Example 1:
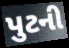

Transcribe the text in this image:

પુટની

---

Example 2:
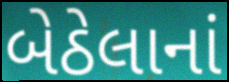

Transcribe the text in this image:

બેઠેલાનાં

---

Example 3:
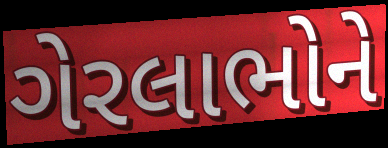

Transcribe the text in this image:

ગેરલાભોને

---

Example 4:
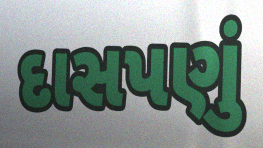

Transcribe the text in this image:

દાસપણું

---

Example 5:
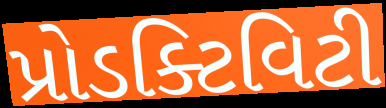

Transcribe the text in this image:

પ્રોડક્ટિવિટી